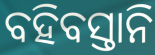
ବହିବସ୍ତାନି